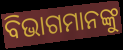
ବିଭାଗମାନଙ୍କୁ